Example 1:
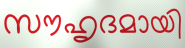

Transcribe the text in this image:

സൗഹൃദമായി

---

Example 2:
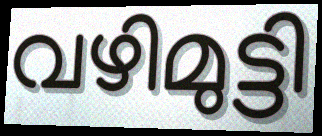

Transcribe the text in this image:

വഴിമുട്ടി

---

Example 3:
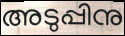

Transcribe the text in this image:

അടുപ്പിനു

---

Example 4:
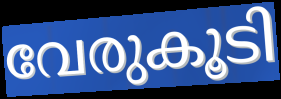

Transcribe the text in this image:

വേരുകൂടി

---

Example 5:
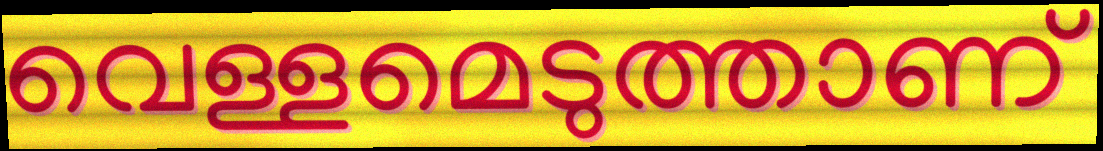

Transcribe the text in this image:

വെള്ളമെടുത്താണ്